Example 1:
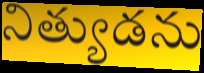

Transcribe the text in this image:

నిత్యుడను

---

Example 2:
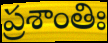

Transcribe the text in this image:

ప్రశాంతిః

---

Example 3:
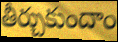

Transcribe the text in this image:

తీర్చుకుందాం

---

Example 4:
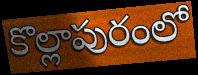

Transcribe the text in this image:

కొల్లాపురంలో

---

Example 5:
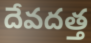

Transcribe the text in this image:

దేవదత్త